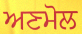
ਅਣਮੋਲ